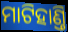
ମାଟିହାଣ୍ତି